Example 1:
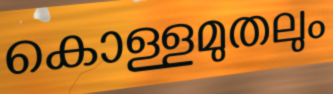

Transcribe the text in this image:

കൊള്ളമുതലും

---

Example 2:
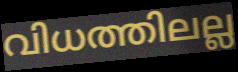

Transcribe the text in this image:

വിധത്തിലല്ല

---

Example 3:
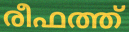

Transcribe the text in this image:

രീഫത്ത്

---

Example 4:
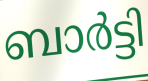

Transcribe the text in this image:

ബാർട്ടി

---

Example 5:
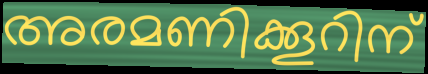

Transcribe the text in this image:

അരമണിക്കൂറിന്